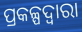
ପ୍ରକଳ୍ପଦ୍ୱାରା